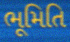
ભૂમિતિ